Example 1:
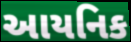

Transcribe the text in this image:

આયનિક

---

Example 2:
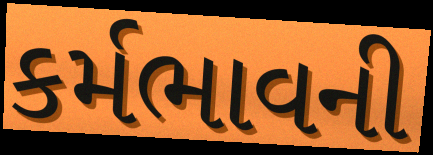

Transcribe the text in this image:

કર્મભાવની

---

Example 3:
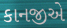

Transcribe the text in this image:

કાનજીએ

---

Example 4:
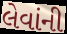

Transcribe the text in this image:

લેવાંની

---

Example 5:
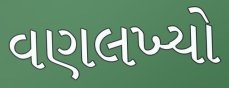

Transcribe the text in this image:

વણલખ્યો